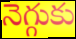
నెగ్గుకు